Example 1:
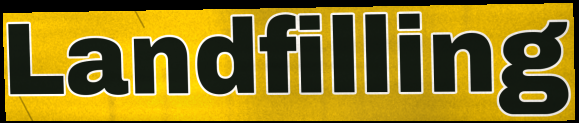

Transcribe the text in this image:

Landfilling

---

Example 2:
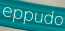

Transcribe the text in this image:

eppudo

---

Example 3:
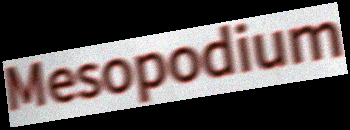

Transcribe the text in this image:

Mesopodium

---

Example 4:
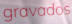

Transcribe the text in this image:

gravados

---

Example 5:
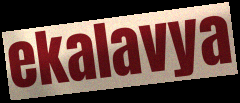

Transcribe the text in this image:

ekalavya